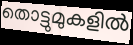
തൊട്ടുമുകളിൽ